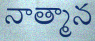
నాత్మాన